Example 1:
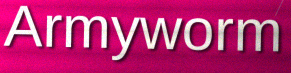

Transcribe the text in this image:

Armyworm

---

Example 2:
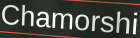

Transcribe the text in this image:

Chamorshi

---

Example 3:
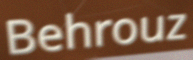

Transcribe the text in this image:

Behrouz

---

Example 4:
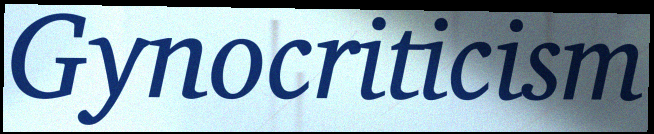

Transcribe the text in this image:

Gynocriticism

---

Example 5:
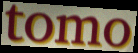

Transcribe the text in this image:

tomo